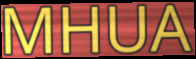
MHUA